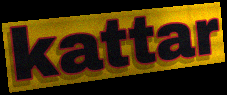
kattar